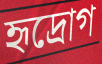
হৃদ্রোগ